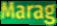
Marag